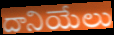
దానియేలు